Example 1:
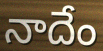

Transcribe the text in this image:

నాదేం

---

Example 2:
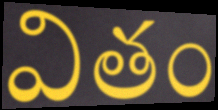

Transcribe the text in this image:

వితం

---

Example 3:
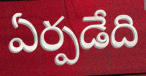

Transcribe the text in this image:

ఏర్పడేది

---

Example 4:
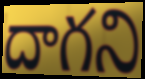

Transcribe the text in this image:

దాగని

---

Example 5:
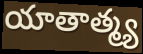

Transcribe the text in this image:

యాతాత్మ్య